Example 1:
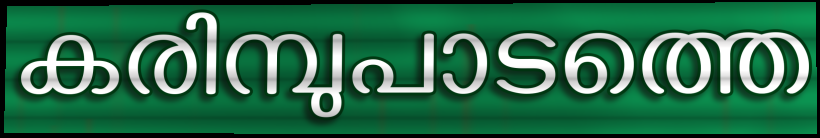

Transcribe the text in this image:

കരിമ്പുപാടത്തെ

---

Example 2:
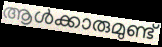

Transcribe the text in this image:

ആൾക്കാരുമുണ്ട്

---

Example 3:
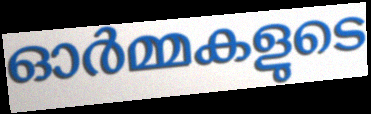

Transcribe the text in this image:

ഓർമ്മകളുടെ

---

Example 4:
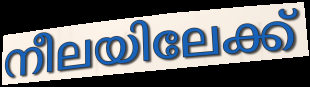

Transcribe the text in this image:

നീലയിലേക്ക്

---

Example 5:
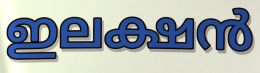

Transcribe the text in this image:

ഇലക്ഷൻ